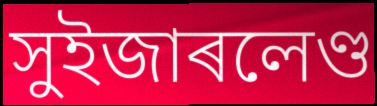
সুইজাৰলেণ্ড